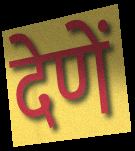
देणें